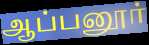
ஆப்பனூர்